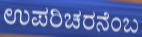
ಉಪರಿಚರನೆಂಬ